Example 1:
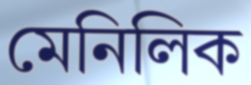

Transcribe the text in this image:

মেনিলিক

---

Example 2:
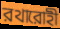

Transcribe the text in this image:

রথারোহী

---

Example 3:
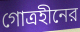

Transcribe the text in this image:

গোত্রহীনের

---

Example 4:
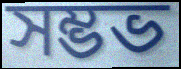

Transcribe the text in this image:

সম্ভভ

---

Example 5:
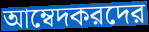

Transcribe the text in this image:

আম্বেদকরদের